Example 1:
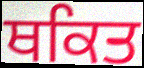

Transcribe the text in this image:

ਥਕਿਤ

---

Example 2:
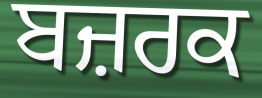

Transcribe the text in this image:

ਬਜ਼ਰਕ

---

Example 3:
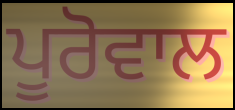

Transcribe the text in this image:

ਪੂਰੋਵਾਲ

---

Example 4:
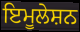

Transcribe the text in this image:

ਇਮੂਲੇਸ਼ਨ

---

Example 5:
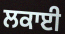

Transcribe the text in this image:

ਲਕਾਈ